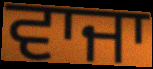
ਵਾਜਾ